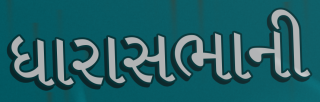
ધારાસભાની